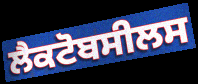
ਲੈਕਟੋਬਸੀਲਸ